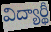
విద్యార్థీ